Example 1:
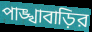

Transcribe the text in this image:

পাঙ্খাবাড়ির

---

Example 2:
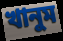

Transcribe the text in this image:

খানুম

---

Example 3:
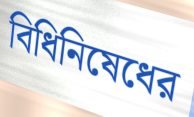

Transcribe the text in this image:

বিধিনিষেধের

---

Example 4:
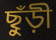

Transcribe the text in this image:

ছুঁড়ী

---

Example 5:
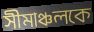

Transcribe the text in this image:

সীমাঞ্চলকে